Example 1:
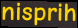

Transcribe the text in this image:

nisprih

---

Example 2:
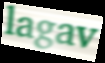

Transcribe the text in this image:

lagav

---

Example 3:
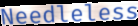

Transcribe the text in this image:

Needleless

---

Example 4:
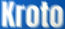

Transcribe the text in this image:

Kroto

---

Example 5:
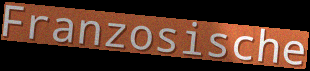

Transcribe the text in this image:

Franzosische